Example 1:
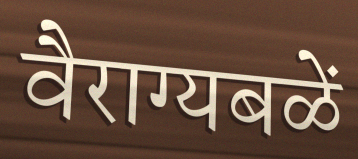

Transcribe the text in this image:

वैराग्यबळें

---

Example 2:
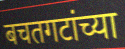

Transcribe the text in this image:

बचतगटांच्या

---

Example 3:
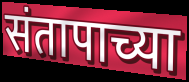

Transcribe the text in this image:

संतापाच्या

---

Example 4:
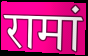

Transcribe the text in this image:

रामां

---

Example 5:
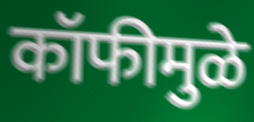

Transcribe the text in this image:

कॉफीमुळे